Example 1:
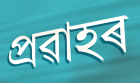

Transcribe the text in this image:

প্ৰৱাহৰ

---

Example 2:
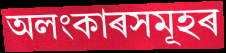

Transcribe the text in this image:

অলংকাৰসমূহৰ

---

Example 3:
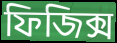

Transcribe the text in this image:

ফিজিক্স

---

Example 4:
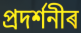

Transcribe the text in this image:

প্ৰদৰ্শনীৰ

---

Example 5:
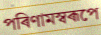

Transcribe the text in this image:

পৰিণামস্বৰূপে